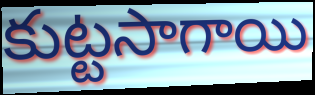
కుట్టసాగాయి